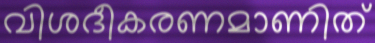
വിശദീകരണമാണിത്